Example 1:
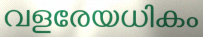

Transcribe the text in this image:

വളരേയധികം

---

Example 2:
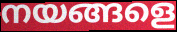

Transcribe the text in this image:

നയങ്ങളെ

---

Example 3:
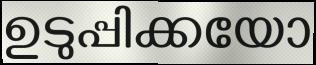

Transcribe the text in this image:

ഉടുപ്പിക്കയോ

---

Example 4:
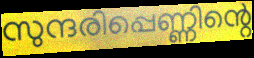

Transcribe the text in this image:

സുന്ദരിപ്പെണ്ണിന്റെ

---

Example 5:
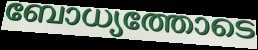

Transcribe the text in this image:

ബോധ്യത്തോടെ